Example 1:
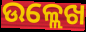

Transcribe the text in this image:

ଉଳ୍ଲେଖ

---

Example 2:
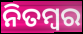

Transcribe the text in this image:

ନିତମ୍ୱର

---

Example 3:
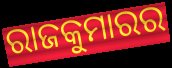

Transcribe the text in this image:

ରାଜକୁମାରର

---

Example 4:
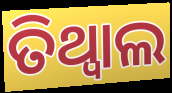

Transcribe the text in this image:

ତିଥ୍ୱାଲ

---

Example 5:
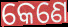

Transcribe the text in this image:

କେଣେ